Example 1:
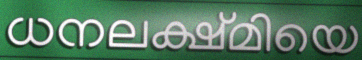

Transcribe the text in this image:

ധനലക്ഷ്മിയെ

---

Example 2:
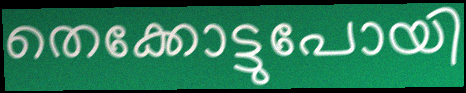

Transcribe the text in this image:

തെക്കോട്ടുപോയി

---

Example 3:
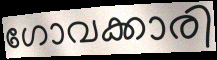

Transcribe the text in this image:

ഗോവക്കാരി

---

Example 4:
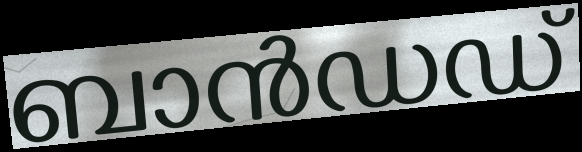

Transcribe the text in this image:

ബാൻഡഡ്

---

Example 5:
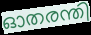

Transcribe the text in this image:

ഓതരന്തി